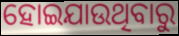
ହୋଇଯାଉଥିବାରୁ